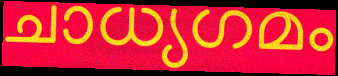
ചാധ്യഗമം